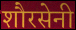
शौरसेनी